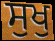
ਸੁਖੁ